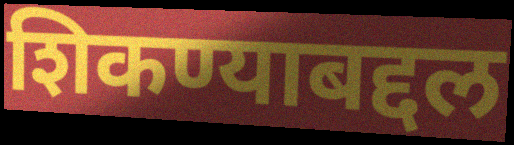
शिकण्याबद्दल